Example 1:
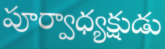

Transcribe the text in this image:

పూర్వాధ్యక్షుడు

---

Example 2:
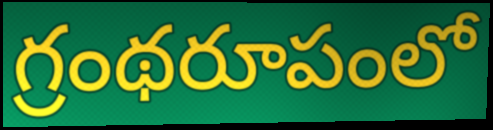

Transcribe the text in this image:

గ్రంథరూపంలో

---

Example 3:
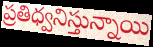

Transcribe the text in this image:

ప్రతిధ్వనిస్తున్నాయి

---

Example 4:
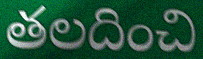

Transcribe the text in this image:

తలదించి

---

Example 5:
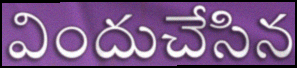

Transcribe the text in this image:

విందుచేసిన